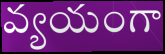
వ్యయంగా